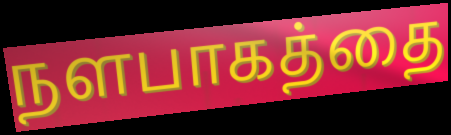
நளபாகத்தை